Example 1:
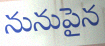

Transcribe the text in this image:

నునుపైన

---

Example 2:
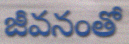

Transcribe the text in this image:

జీవనంతో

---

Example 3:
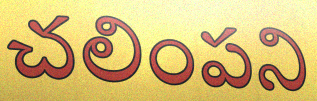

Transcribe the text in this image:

చలింపని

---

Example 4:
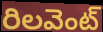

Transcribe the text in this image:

రిలవెంట్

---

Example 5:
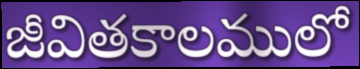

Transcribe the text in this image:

జీవితకాలములో